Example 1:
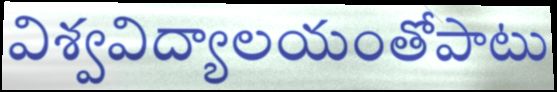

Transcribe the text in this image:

విశ్వవిద్యాలయంతోపాటు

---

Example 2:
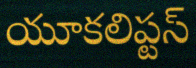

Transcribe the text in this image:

యూకలిప్టస్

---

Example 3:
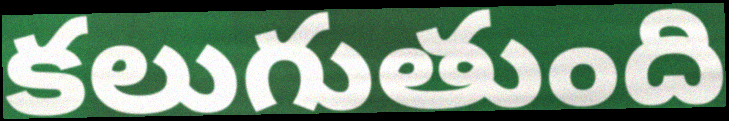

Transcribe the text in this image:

కలుగుతుంది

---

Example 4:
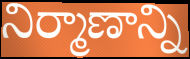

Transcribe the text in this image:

నిర్మాణాన్ని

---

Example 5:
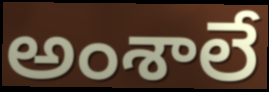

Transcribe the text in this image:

అంశాలే